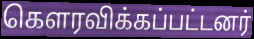
கௌரவிக்கப்பட்டனர்